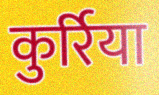
कुर्रिया